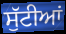
ਸੁੱਟੀਆਂ